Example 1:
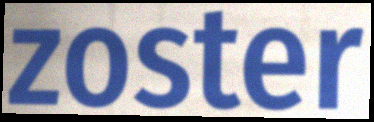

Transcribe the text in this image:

zoster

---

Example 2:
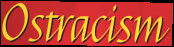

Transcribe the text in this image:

Ostracism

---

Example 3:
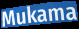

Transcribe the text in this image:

Mukama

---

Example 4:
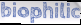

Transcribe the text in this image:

biophilic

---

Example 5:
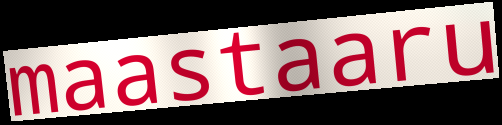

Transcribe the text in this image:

maastaaru